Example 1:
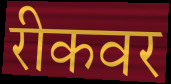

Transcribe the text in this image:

रीकवर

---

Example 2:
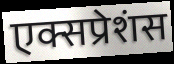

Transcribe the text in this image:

एक्सप्रेशंस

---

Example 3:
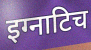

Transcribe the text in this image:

इग्नाटिच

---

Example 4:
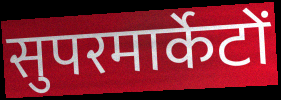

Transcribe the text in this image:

सुपरमार्केटों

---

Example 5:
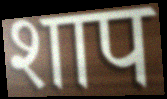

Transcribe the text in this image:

शाप